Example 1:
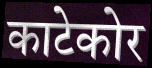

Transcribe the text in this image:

काटेकोर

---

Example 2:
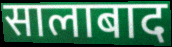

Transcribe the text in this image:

सालाबाद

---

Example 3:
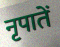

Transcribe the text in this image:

नृपातें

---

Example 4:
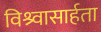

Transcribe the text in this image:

विश्र्वासार्हता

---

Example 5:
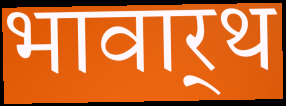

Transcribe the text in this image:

भावार्थ